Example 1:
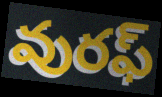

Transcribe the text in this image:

వురఫ్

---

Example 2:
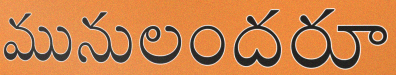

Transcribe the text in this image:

మునులందరూ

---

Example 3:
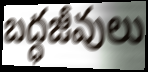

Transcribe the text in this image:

బద్ధజీవులు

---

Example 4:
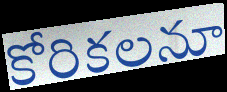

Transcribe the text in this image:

కోరికలనూ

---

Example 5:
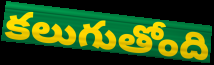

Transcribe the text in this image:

కలుగుతోంది